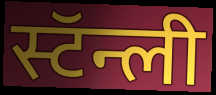
स्टॅन्ली